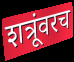
शत्रूंवरच